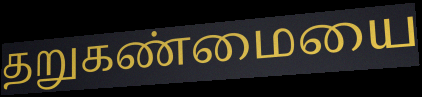
தறுகண்மையை